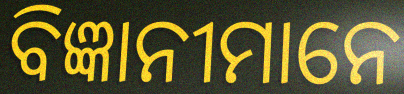
ବିଜ୍ଞାନୀମାନେ